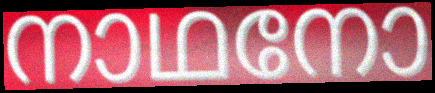
നാഥനോ